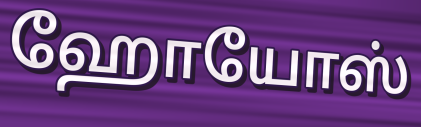
ஹோயோஸ்